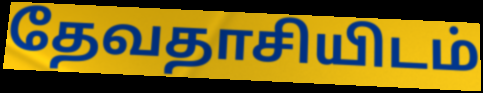
தேவதாசியிடம்